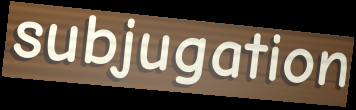
subjugation